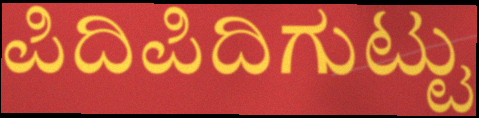
ಪಿದಿಪಿದಿಗುಟ್ಟು